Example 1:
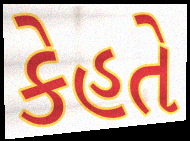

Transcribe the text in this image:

કેહતે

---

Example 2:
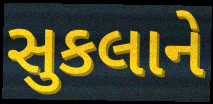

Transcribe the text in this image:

સુકલાને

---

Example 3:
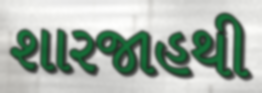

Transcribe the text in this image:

શારજાહથી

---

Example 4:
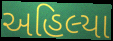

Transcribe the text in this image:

અહિલ્યા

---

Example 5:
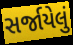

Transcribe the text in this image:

સર્જાયેલું